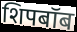
शिपबॉब